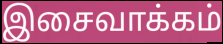
இசைவாக்கம்